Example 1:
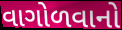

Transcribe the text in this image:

વાગોળવાનો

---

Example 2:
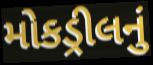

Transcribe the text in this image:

મોકડ્રીલનું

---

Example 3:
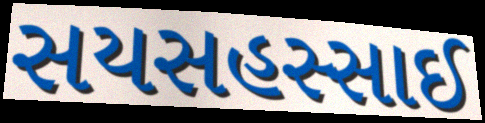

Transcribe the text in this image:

સયસહસ્સાઈ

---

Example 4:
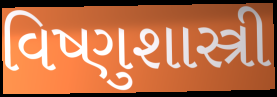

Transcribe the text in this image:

વિષ્ણુશાસ્ત્રી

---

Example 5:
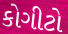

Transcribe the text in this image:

કોગીટો